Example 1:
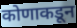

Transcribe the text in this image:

कोणाकडून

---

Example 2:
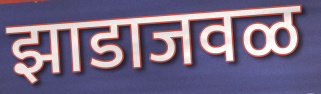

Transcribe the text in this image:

झाडाजवळ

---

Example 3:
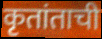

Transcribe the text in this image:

कृतांताची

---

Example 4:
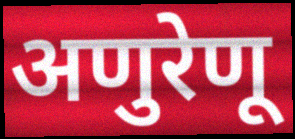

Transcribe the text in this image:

अणुरेणू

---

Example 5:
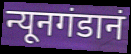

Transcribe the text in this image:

न्यूनगंडानं